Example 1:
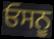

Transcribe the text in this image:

ਓਸਨੂ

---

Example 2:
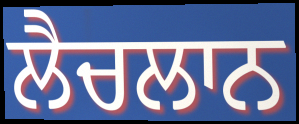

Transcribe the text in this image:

ਲੈਚਲਾਨ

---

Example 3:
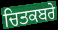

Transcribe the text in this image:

ਚਿਤਕਬਰੇ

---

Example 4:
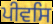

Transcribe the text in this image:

ਪੀਵਸਿ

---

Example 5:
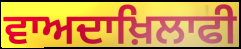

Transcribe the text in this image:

ਵਾਅਦਾਖ਼ਿਲਾਫੀ